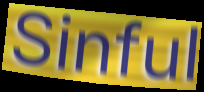
Sinful